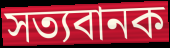
সত্যবানক